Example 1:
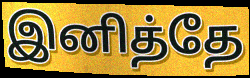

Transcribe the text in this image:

இனித்தே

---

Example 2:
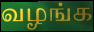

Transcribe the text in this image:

வழங்க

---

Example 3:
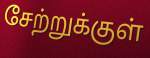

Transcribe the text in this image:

சேற்றுக்குள்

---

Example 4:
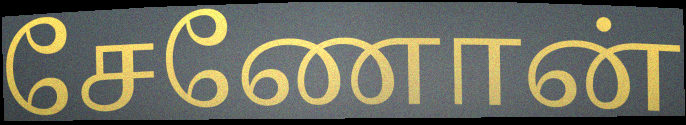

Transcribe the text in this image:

சேணோன்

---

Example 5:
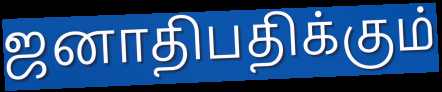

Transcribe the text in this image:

ஜனாதிபதிக்கும்